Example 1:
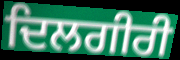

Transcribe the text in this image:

ਦਿਲਗੀਰੀ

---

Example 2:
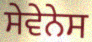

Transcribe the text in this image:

ਸੇਵੇਨੇਸ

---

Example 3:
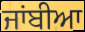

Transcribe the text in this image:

ਜਾਂਬੀਆ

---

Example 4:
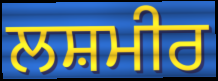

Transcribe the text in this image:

ਲਸ਼ਮੀਰ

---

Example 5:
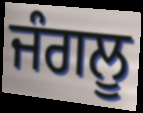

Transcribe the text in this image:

ਜੰਗਲੂ